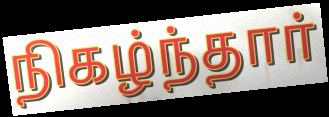
நிகழ்ந்தார்